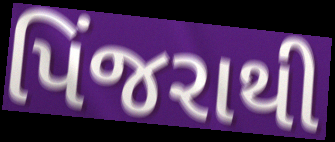
પિંજરાથી